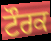
ਟੌਰਕ